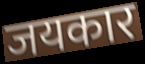
जयकार